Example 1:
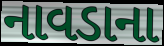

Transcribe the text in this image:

નાવડાના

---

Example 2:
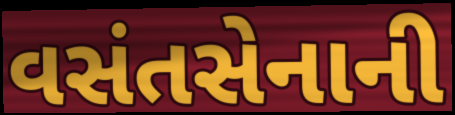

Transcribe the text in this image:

વસંતસેનાની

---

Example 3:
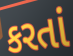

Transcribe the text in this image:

કરતાં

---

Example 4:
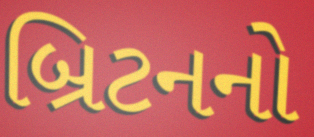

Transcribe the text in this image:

બ્રિટનનો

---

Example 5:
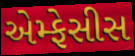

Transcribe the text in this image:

એમ્ફેસીસ